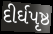
દીર્ઘપૃષ્ઠ